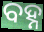
ବହ୍ନ